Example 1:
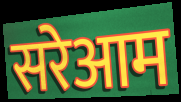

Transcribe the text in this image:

सरेआम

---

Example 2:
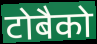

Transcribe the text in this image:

टोबैको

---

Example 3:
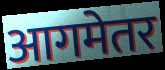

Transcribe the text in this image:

आगमेतर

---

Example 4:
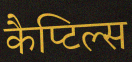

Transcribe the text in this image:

कैप्टिल्स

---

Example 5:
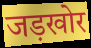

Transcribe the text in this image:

जड़खोर